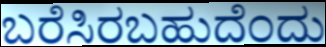
ಬರೆಸಿರಬಹುದೆಂದು